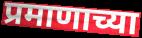
प्रमाणाच्या